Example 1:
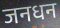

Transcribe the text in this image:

जनधन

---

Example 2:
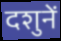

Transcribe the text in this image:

दशुनें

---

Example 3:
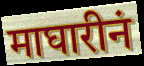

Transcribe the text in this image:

माघारीनं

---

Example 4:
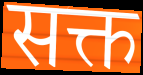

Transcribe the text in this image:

सक्त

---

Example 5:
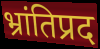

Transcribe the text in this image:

भ्रांतिप्रद